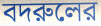
বদরুলের